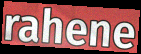
rahene